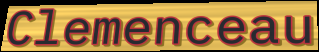
Clemenceau